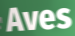
Aves